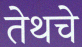
तेथचे